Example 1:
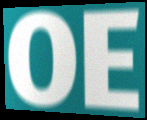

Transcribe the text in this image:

OE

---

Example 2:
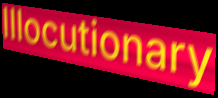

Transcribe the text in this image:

Illocutionary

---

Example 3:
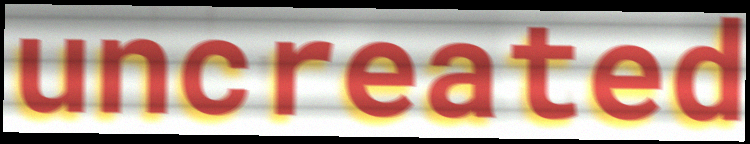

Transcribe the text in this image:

uncreated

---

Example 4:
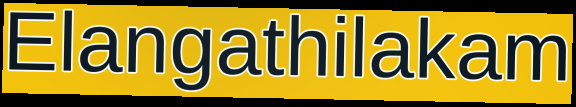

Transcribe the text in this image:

Elangathilakam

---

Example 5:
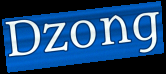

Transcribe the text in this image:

Dzong